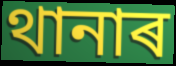
থানাৰ